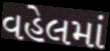
વહેલમાં